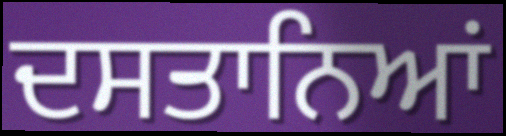
ਦਸਤਾਨਿਆਂ